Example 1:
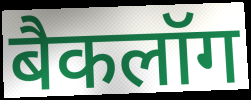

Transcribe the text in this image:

बैकलॉग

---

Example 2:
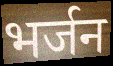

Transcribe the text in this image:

भर्जन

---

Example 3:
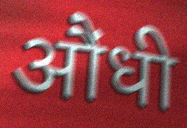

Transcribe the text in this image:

औंधी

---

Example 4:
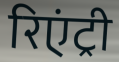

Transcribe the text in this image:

रिएंट्री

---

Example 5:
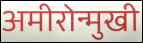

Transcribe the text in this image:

अमीरोन्मुखी